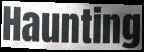
Haunting